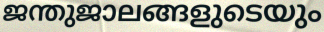
ജന്തുജാലങ്ങളുടെയും